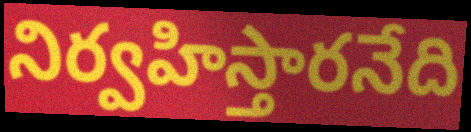
నిర్వహిస్తారనేది